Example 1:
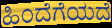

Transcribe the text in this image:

ಹಿಂದೆಗೆಯದೆ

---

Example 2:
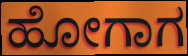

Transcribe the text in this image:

ಹೋಗಾಗ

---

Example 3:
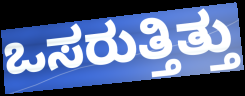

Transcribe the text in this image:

ಒಸರುತ್ತಿತ್ತು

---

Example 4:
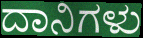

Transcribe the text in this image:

ದಾನಿಗಳು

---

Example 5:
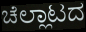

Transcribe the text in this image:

ಚೆಲ್ಲಾಟದ